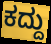
ಕದ್ದು